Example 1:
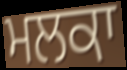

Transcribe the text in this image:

ਮਲਕਾ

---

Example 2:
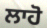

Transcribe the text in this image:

ਲਾਹੋ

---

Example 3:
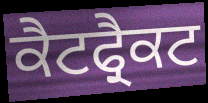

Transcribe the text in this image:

ਕੈਟਫ੍ਰੈਕਟ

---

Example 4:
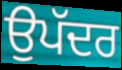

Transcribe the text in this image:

ਉਪੱਦਰ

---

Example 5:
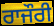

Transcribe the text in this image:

ਰਾਜੌਰੀ